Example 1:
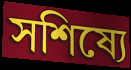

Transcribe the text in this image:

সশিষ্যে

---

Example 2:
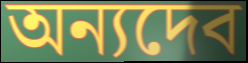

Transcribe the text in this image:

অন্যদেব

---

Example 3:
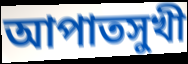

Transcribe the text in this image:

আপাতসুখী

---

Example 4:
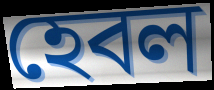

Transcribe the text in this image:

হেবল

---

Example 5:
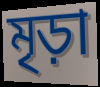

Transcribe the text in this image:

মৃড়া